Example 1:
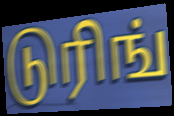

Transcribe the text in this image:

டுரிங்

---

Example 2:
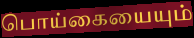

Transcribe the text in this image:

பொய்கையையும்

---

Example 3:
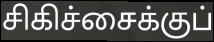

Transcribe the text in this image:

சிகிச்சைக்குப்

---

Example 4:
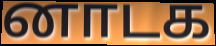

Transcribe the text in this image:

னாடக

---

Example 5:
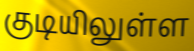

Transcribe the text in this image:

குடியிலுள்ள